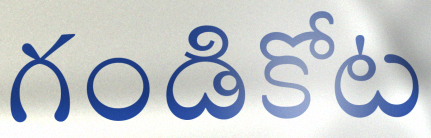
గండికోట